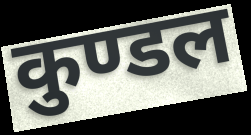
कुण्डल